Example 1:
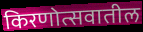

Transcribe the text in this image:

किरणोत्सवातील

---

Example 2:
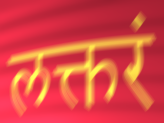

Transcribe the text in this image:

लक्तरं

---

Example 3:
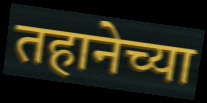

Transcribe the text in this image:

तहानेच्या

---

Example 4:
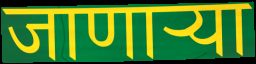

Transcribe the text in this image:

जाणार्‍या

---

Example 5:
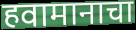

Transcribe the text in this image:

हवामानाचा